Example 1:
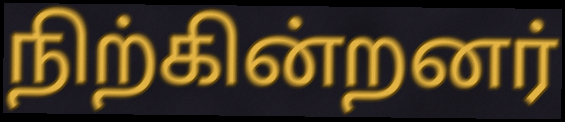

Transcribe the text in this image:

நிற்கின்றனர்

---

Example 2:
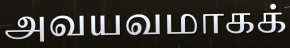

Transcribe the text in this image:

அவயவமாகக்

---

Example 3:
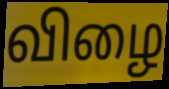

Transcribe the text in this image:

விழை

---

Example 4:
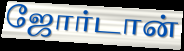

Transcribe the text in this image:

ஜோர்டான்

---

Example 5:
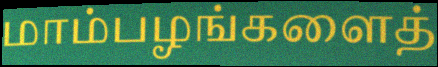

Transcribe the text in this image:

மாம்பழங்களைத்